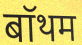
बॉथम